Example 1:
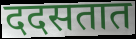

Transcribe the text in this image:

ददसतात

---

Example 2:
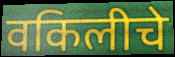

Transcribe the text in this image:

वकिलीचे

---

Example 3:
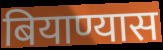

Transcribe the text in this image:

बियाण्यास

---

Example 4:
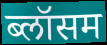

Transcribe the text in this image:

ब्लॉसम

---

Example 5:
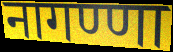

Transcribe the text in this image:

नागण्णा